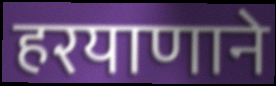
हरयाणाने